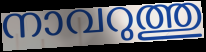
നാവറുത്തു